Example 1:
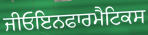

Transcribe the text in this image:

ਜੀਓਇਨਫਾਰਮੈਟਿਕਸ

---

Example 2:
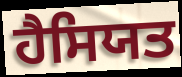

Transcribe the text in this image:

ਹੈਸਿਯਤ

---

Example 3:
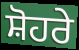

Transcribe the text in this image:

ਸ਼ੋਹਰੇ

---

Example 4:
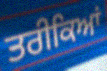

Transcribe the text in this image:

ਤਰੀਕਿਆਂ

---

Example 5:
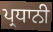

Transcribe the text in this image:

ਪ੍ਰਧਾਨੀ